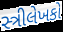
સ્ત્રીલેખકો